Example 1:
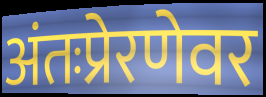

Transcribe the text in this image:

अंतःप्रेरणेवर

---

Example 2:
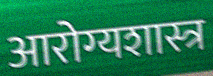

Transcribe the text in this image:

आरोग्यशास्त्र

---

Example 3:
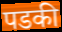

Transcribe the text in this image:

पडकी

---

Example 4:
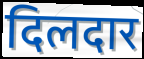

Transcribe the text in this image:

दिलदार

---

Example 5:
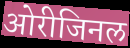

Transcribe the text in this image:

ओरीजिनल